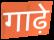
गाढ़े